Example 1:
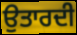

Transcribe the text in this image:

ਉਤਾਰਦੀ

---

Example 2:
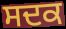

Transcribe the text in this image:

ਸਦਕ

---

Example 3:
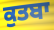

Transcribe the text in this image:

ਕੁਤਬਾ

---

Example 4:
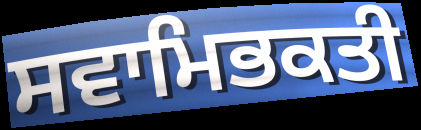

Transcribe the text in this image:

ਸਵਾਮਿਭਕਤੀ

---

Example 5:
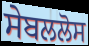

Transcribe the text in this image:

ਸੇਬਲਲੋਸ